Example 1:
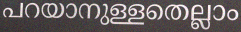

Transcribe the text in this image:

പറയാനുള്ളതെല്ലാം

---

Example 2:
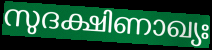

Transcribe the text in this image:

സുദക്ഷിണാഖ്യഃ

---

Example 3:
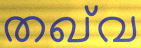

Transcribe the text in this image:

തഖ്‌വ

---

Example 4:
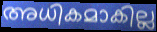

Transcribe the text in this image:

അധികമാകില്ല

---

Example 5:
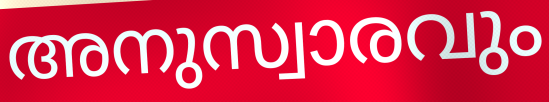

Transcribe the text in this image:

അനുസ്വാരവും